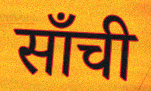
साँची